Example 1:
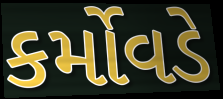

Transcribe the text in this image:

કર્મોવડે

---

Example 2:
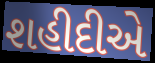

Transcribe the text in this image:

શહીદીએ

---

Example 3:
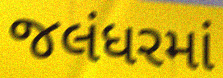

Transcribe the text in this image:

જલંધરમાં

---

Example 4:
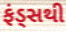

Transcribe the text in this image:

ફંડ્સથી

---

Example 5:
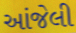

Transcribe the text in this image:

આંજેલી